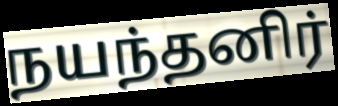
நயந்தனிர்